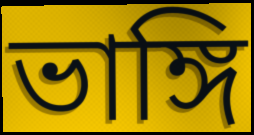
ভাঙ্গি